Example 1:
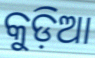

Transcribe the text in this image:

କୁଡ଼ିଆ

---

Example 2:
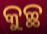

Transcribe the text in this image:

କୁଚ୍ଛ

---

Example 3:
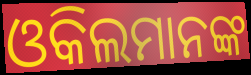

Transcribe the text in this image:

ଓକିଲମାନଙ୍କ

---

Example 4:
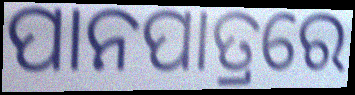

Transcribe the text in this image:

ପାନପାତ୍ରରେ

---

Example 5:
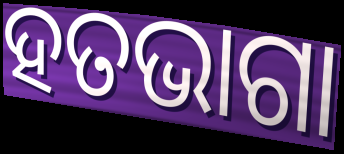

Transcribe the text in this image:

ହତଭାଗା